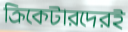
ক্রিকেটারদেরই